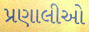
પ્રણાલીઓ